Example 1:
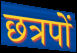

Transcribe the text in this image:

छत्रपों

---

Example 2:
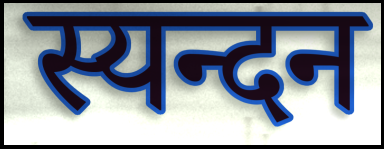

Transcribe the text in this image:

स्यन्दन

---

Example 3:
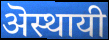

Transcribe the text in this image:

ऄस्थायी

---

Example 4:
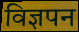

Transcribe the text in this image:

विज्ञपन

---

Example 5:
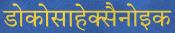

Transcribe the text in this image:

डोकोसाहेक्सैनोइक